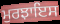
ਮੁਰਝਾਇਸ